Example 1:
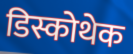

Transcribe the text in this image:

डिस्कोथेक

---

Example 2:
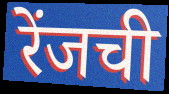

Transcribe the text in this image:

रेंजची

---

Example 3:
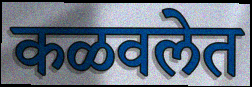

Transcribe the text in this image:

कळवलेत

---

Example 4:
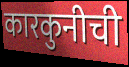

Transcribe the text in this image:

कारकुनीची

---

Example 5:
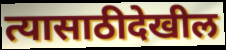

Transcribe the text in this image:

त्यासाठीदेखील